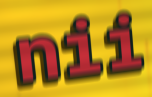
nii